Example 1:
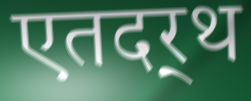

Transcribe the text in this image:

एतदर्थ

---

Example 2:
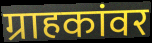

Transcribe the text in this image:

ग्राहकांवर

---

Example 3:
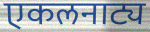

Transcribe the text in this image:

एकलनाट्य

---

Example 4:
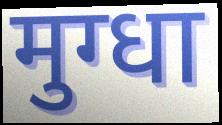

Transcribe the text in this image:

मुग्धा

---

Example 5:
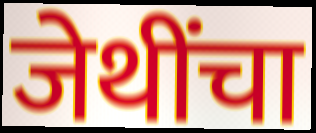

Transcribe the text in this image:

जेथींचा